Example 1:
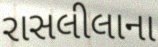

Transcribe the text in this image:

રાસલીલાના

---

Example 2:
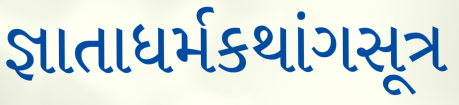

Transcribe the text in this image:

જ્ઞાતાધર્મકથાંગસૂત્ર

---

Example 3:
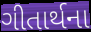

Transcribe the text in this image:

ગીતાર્થના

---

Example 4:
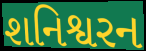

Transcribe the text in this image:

શનિશ્વરન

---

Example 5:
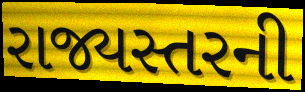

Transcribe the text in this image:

રાજ્યસ્તરની